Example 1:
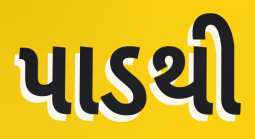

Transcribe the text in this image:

પાડથી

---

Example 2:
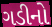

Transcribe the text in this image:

ગડીનો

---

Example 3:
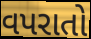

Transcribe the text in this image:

વપરાતો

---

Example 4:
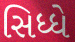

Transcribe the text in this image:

સિધ્ધે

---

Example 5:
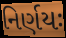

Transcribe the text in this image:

નિર્ણયઃ